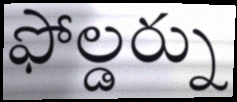
ఫోల్డర్ను